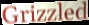
Grizzled